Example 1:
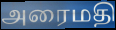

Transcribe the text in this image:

அரைமதி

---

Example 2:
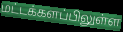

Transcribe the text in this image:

மட்டக்களப்பிலுள்ள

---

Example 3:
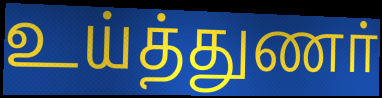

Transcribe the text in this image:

உய்த்துணர்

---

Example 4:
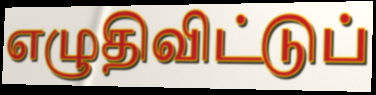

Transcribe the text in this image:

எழுதிவிட்டுப்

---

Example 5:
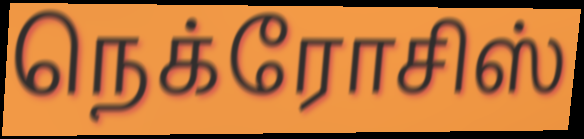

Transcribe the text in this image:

நெக்ரோசிஸ்